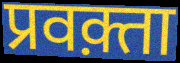
प्रवक़्ता